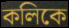
কলিকে